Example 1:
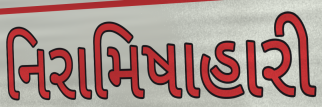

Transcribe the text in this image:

નિરામિષાહારી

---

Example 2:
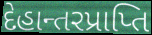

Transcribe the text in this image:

દેહાન્તરપ્રાપ્તિ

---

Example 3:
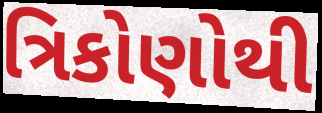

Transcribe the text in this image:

ત્રિકોણોથી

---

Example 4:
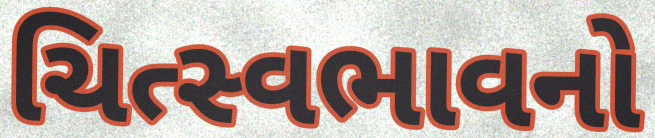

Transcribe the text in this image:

ચિત્સ્વભાવનો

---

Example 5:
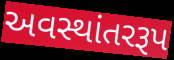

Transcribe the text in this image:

અવસ્થાંતરરૂપ